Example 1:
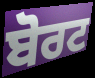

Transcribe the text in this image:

ਬੋਰਟ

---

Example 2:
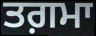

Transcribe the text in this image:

ਤਗ਼ਮਾ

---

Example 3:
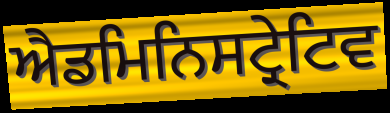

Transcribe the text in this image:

ਐਡਮਿਨਿਸਟ੍ਰੇਟਿਵ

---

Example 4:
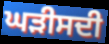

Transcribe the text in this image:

ਘੜੀਸਦੀ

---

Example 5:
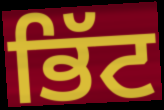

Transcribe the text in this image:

ਭਿੱਟ